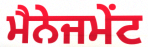
ਮੈਨੇਜਮੇੰਟ